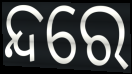
ନ୍ଦରେ